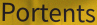
Portents